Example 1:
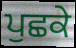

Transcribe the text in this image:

ਪੁਛਕੇ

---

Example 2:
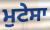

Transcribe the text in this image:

ਮੁਟੇਸਾ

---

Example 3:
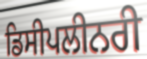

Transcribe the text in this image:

ਡਿਸੀਪਲੀਨਰੀ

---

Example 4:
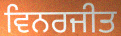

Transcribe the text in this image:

ਵਿਨਰਜੀਤ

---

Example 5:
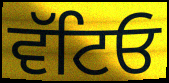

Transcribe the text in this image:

ਵੱਟਿਓ